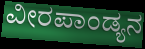
ವೀರಪಾಂಡ್ಯನ